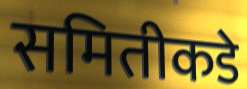
समितीकडे